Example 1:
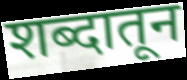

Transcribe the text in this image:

शब्दातून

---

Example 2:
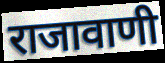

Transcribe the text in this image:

राजावाणी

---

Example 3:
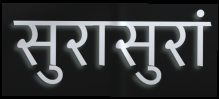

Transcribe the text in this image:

सुरासुरां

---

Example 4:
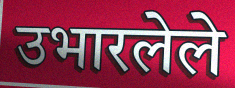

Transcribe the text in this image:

उभारलेले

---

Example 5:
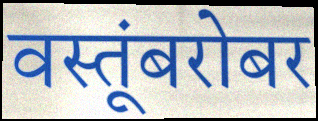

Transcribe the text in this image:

वस्तूंबरोबर